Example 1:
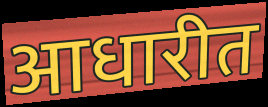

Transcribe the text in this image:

आधारीत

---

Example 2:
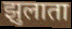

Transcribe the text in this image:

झुलाता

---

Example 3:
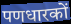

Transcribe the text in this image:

पणधारकों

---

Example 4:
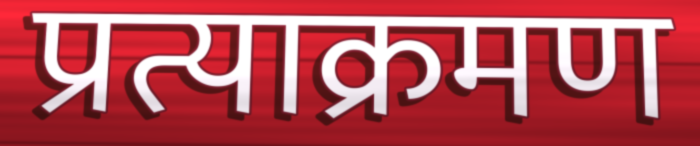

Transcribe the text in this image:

प्रत्याक्रमण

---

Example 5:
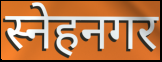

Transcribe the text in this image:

स्नेहनगर